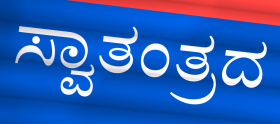
ಸ್ವಾತಂತ್ರದ